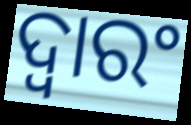
ଦ୍ୱାରଂ